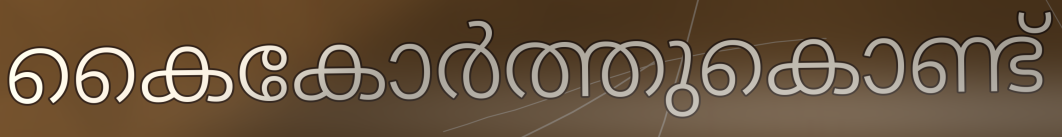
കൈകോർത്തുകൊണ്ട്